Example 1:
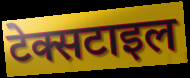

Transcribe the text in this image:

टेक्सटाइल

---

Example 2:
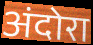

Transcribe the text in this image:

अंदोरा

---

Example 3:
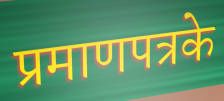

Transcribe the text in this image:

प्रमाणपत्रके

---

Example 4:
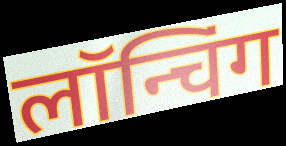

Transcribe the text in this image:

लॉन्चिंग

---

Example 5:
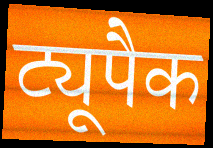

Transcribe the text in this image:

ट्यूपैक